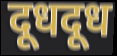
दूधदूध